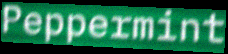
Peppermint